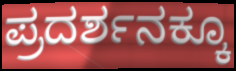
ಪ್ರದರ್ಶನಕ್ಕೂ